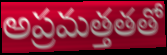
అప్రమత్తతతో